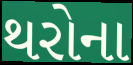
થરોના